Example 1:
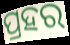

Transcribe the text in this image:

ପ୍ରହର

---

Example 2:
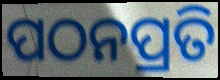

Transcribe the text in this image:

ପଠନପ୍ରତି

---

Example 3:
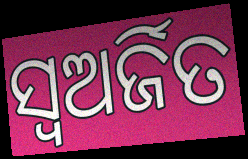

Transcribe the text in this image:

ସ୍ୱଅର୍ଜିତ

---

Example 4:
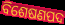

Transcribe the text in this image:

ବିଶେଷଣପଦ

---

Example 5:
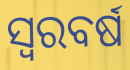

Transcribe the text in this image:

ସ୍ଵରବର୍ଷ